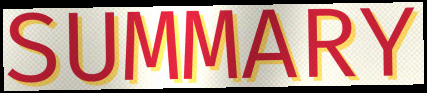
SUMMARY